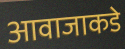
आवाजाकडे